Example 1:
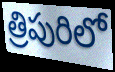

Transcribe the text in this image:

త్రిపురిలో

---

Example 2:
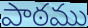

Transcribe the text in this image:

పాఠము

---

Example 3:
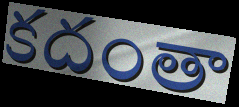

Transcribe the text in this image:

కదంతా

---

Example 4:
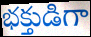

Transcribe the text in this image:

భక్తుడిగా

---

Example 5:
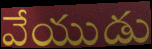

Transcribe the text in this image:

వేయుడు